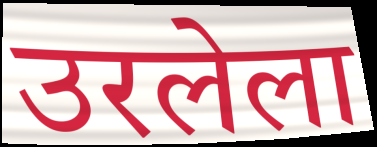
उरलेला